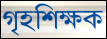
গৃহশিক্ষক